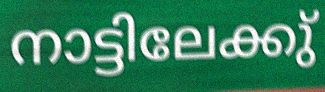
നാട്ടിലേക്കു്